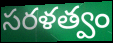
సరళత్వం